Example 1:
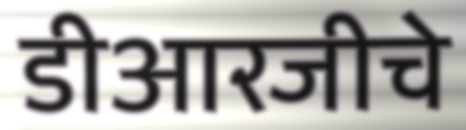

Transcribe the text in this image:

डीआरजीचे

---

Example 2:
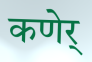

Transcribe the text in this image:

कणेर्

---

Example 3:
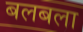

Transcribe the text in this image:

बलबला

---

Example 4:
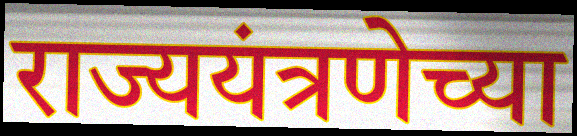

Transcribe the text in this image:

राज्ययंत्रणेच्या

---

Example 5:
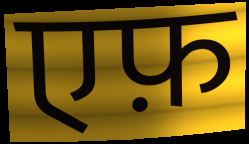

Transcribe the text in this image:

एफ़